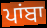
ਪਾਂਬਾ